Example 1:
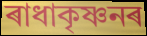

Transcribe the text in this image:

ৰাধাকৃষ্ণনৰ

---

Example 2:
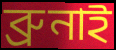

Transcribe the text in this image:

ব্ৰুনাই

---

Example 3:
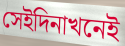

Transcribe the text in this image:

সেইদিনাখনেই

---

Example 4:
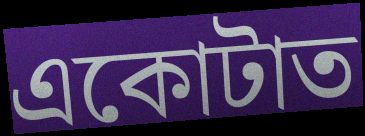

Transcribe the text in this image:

একোটাত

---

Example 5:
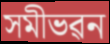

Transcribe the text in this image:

সমীভৱন